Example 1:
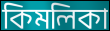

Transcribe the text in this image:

কিমলিকা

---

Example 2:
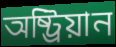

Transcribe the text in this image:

অষ্ট্ৰিয়ান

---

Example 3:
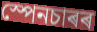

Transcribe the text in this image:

স্পেনচাৰৰ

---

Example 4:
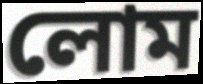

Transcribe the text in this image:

লোম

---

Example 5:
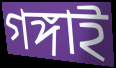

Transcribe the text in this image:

গঙ্গাই